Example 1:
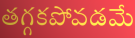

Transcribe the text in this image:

తగ్గకపోవడమే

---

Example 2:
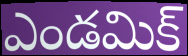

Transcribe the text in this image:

ఎండమిక్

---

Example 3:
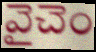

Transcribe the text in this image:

వైచెం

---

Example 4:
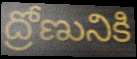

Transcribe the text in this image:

ద్రోణునికి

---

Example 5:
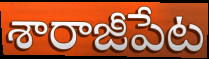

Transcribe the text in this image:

శారాజీపేట